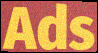
Ads